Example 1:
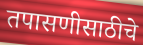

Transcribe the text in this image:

तपासणीसाठीचे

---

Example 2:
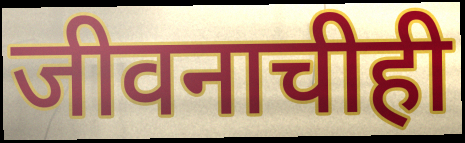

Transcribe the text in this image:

जीवनाचीही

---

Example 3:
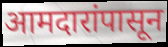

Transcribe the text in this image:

आमदारांपासून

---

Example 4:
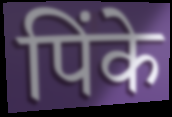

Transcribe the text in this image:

पिंके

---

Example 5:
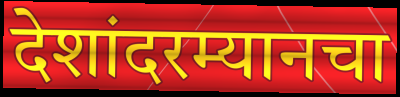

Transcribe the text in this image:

देशांदरम्यानचा